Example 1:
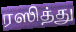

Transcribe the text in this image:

ரஸித்து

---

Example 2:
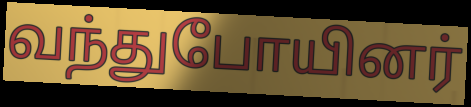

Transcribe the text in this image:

வந்துபோயினர்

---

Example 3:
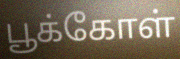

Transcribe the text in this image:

பூக்கோள்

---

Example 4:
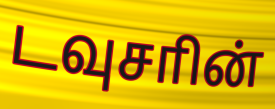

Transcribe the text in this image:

டவுசரின்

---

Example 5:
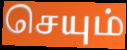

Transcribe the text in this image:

செயும்